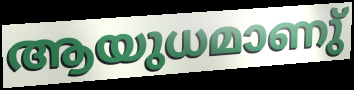
ആയുധമാണു്